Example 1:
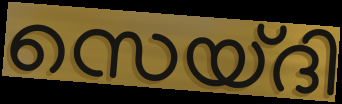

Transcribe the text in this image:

സെയ്ദി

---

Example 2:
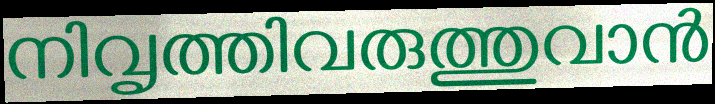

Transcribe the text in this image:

നിവൃത്തിവരുത്തുവാൻ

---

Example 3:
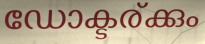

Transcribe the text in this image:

ഡോക്ടര്ക്കും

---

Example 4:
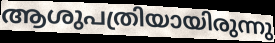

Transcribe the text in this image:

ആശുപത്രിയായിരുന്നു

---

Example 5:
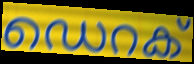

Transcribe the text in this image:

ഡെറക്